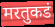
मरतुकडं